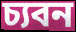
চ্যবন